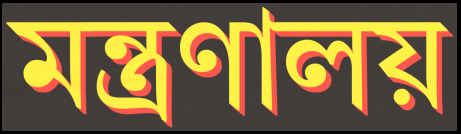
মন্ত্রণালয়